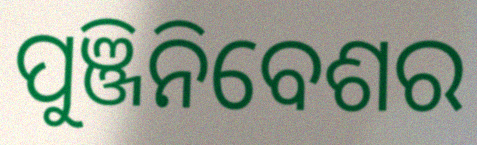
ପୁଞ୍ଜିନିବେଶର